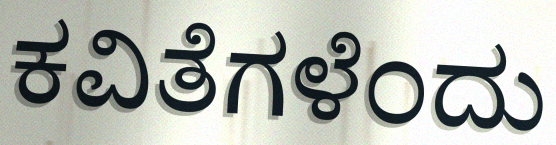
ಕವಿತೆಗಳೆಂದು